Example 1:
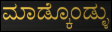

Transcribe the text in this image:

ಮಾಡ್ಕೊಂಡ್ಳು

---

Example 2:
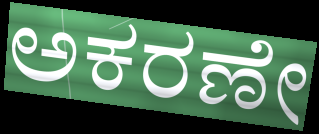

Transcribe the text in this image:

ಅಕರಣೇ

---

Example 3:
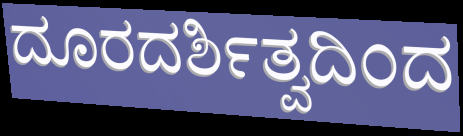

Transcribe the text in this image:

ದೂರದರ್ಶಿತ್ವದಿಂದ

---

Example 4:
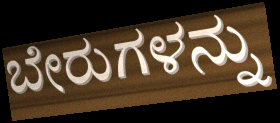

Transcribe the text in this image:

ಬೇರುಗಳನ್ನು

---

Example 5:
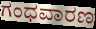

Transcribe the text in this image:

ಗಂಧವಾರಣ